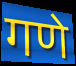
गणे